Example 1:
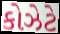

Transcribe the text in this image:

કોઝેટે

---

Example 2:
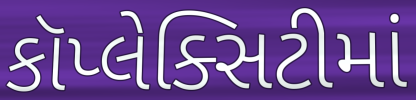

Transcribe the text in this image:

કૉપ્લેક્સિટીમાં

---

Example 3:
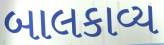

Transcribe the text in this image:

બાલકાવ્ય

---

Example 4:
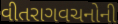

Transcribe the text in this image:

વીતરાગવચનોની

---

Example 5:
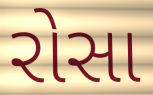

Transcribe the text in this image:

રોસા